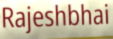
Rajeshbhai